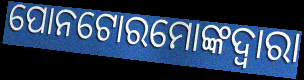
ପୋନଟୋରମୋଙ୍କଦ୍ୱାରା